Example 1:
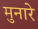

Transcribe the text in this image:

मुनारे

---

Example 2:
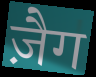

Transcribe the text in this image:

ज़ैग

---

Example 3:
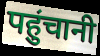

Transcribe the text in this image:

पहुंचानी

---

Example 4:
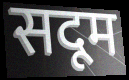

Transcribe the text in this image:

सदूम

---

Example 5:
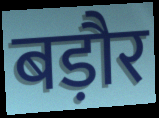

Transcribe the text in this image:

बड़ौर